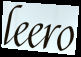
leero